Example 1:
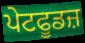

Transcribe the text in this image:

ਪੇਟਫੂਡਜ਼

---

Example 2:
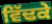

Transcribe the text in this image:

ਵਿੱਢਕੇ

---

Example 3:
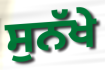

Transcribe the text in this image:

ਸੁਨੱਖੇ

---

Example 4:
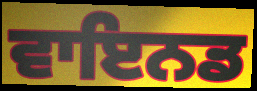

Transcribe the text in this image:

ਵਾਇਨਡ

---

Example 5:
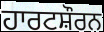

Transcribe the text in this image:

ਹਾਰਟਸ਼ੌਰਨ